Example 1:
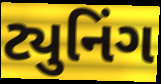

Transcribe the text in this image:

ટ્યુનિંગ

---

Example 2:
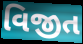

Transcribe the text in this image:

વિજીત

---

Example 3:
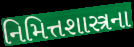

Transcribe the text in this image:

નિમિત્તશાસ્ત્રના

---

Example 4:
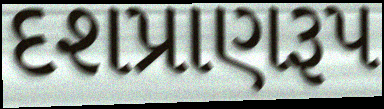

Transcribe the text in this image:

દશપ્રાણરૂપ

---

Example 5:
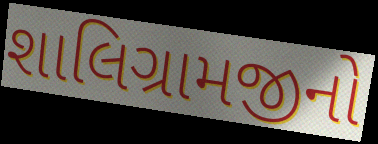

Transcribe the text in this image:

શાલિગ્રામજીનો